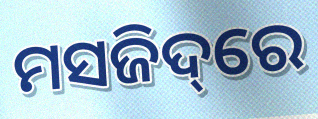
ମସଜିଦ୍‌ରେ